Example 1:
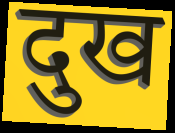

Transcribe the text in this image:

दुख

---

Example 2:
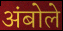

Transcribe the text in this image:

अंबोले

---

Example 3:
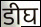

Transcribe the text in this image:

डीघ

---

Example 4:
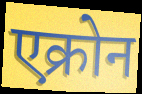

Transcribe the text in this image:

एक्रोन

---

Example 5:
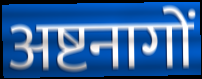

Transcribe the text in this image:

अष्टनागों